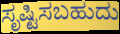
ಸೃಷ್ಟಿಸಬಹುದು